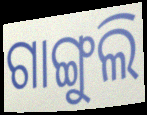
ଗାଙ୍ଗୁଲି